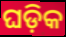
ଘଡ଼ିକ